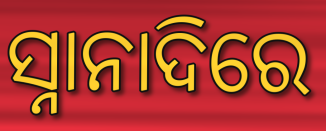
ସ୍ନାନାଦିରେ